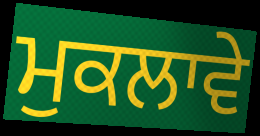
ਮੁਕਲਾਵੇ